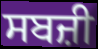
ਸਬਜ਼ੀ